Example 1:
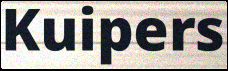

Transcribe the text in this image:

Kuipers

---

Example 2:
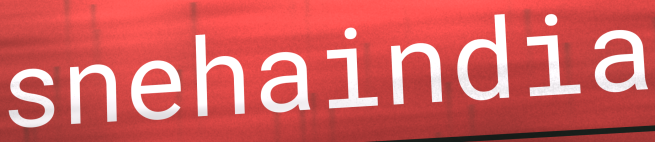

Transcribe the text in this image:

snehaindia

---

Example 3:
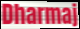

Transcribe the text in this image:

Dharmaj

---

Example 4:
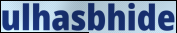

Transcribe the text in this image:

ulhasbhide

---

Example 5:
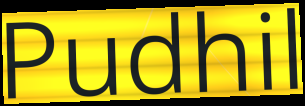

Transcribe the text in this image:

Pudhil